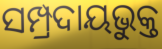
ସମ୍ପ୍ରଦାୟଭୁକ୍ତ